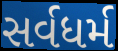
સર્વધર્મ